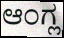
ಆಂಗ್ಲ